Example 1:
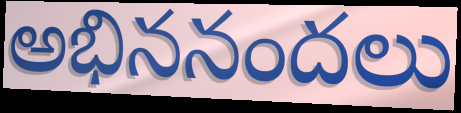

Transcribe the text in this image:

అభిననందలు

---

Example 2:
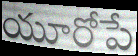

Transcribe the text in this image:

యూరోపే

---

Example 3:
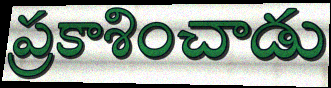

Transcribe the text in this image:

ప్రకాశించాడు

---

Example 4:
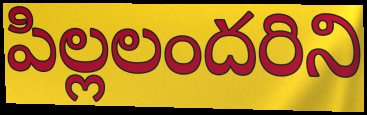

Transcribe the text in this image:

పిల్లలందరిని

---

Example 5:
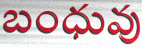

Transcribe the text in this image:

బంధువు